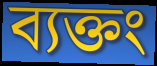
ব্যক্তং